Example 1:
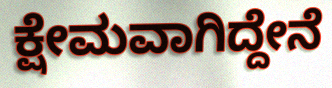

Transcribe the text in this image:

ಕ್ಷೇಮವಾಗಿದ್ದೇನೆ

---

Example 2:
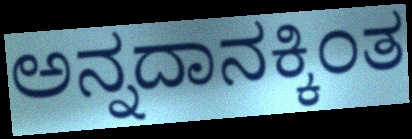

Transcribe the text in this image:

ಅನ್ನದಾನಕ್ಕಿಂತ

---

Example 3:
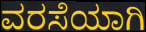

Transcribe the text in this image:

ವರಸೆಯಾಗಿ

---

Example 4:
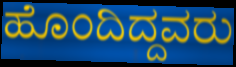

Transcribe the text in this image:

ಹೊಂದಿದ್ದವರು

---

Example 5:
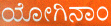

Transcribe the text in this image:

ಯೋಗಿನಾಂ